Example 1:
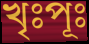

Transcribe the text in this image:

খৃঃপূঃ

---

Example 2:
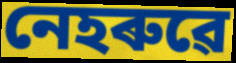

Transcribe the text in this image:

নেহৰুৱে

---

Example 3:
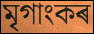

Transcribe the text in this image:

মৃগাংকৰ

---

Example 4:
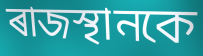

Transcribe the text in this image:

ৰাজস্থানকে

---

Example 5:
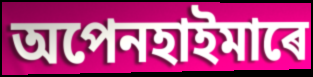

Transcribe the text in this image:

অপেনহাইমাৰে